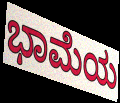
ಭಾಮೆಯ